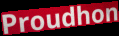
Proudhon